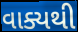
વાક્યથી